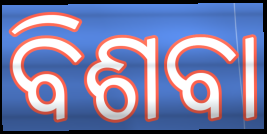
ବିଶବା